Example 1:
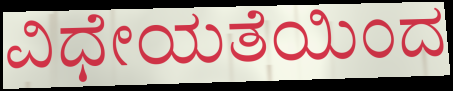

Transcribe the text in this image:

ವಿಧೇಯತೆಯಿಂದ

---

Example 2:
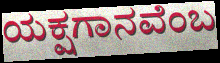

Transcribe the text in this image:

ಯಕ್ಷಗಾನವೆಂಬ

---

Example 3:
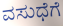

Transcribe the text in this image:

ವಸುಧೆಗೆ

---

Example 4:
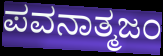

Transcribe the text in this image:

ಪವನಾತ್ಮಜಂ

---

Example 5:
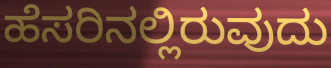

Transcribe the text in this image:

ಹೆಸರಿನಲ್ಲಿರುವುದು